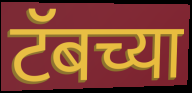
टॅबच्या